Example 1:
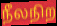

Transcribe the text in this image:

நீலநிற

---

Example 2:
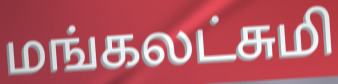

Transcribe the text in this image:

மங்கலட்சுமி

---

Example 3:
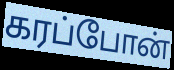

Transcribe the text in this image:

கரப்போன்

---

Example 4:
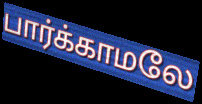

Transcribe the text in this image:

பார்க்காமலே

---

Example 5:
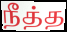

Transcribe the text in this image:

நீத்த